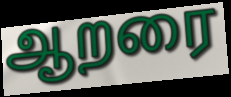
ஆறரை